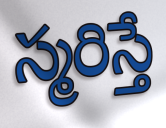
స్మరిస్తే